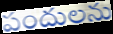
పందులను